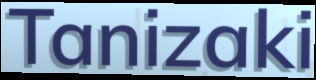
Tanizaki